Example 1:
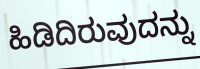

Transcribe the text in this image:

ಹಿಡಿದಿರುವುದನ್ನು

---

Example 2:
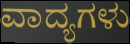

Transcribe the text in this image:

ವಾದ್ಯಗಳು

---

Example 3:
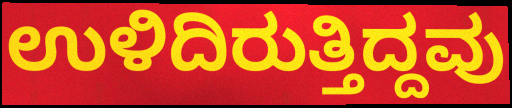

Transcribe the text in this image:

ಉಳಿದಿರುತ್ತಿದ್ದವು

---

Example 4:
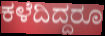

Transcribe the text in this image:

ಕಳೆದಿದ್ದರೂ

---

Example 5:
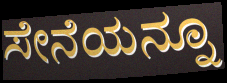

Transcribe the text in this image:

ಸೇನೆಯನ್ನೂ